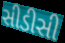
સીડીસી